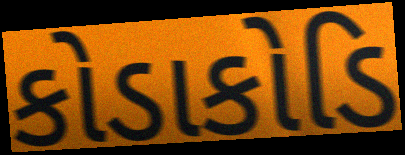
કોડાકોડિ